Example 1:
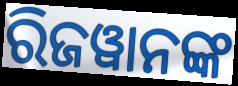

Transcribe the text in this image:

ରିଜୱାନଙ୍କ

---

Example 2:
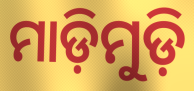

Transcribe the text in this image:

ମାଡ଼ିମୁଡ଼ି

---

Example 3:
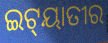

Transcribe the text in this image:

ଇଟ୍‍ୟାତୀର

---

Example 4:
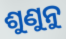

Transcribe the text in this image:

ଶୁଣୁନୁ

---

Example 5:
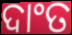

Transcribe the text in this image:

ଦାଂତ